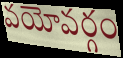
వయోవర్గం